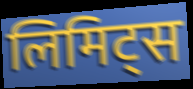
लिमिट्स